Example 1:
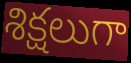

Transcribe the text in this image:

శిక్షలుగా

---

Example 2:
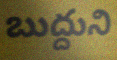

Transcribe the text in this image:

బుద్దుని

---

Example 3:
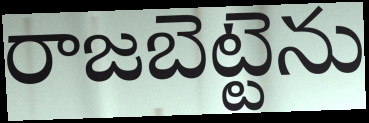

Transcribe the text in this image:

రాజబెట్టెను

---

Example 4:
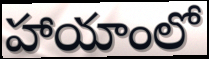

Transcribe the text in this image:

హాయాంలో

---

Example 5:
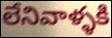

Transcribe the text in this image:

లేనివాళ్ళకి